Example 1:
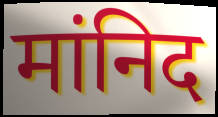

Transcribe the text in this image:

मांनिद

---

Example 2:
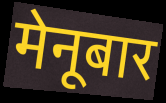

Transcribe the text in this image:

मेनूबार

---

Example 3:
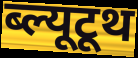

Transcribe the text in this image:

ब्ल्यूटूथ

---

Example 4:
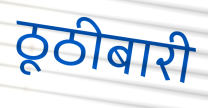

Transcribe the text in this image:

ठूठीबारी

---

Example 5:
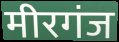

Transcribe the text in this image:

मीरगंज